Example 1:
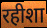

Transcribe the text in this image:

रहीशा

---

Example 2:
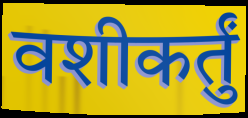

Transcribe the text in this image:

वशीकर्तुं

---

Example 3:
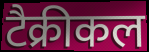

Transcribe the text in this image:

टैक्रीकल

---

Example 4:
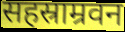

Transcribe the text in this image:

सहस्राम्रवन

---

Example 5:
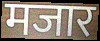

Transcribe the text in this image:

मजार